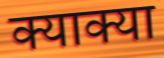
क्याक्या